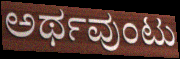
ಅರ್ಥವುಂಟು